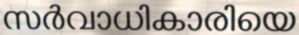
സർവാധികാരിയെ